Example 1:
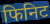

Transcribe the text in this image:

फिनिट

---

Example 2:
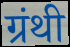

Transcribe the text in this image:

ग्रंथी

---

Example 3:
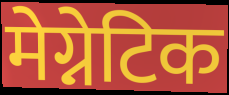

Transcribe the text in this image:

मेग्नेटिक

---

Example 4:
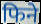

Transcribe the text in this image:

फिने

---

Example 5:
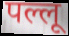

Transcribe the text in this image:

पल्लू